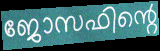
ജോസഫിന്റെ